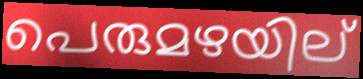
പെരുമഴയില്